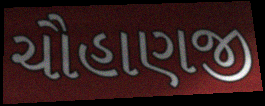
ચૌહાણજી